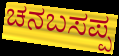
ಚನಬಸಪ್ಪ